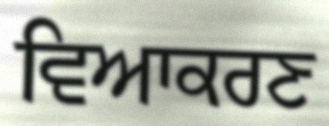
ਵਿਆਕਰਣ